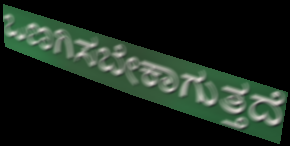
ಒಣಗಿಸಬೇಕಾಗುತ್ತದೆ